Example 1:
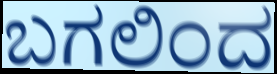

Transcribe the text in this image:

ಬಗಲಿಂದ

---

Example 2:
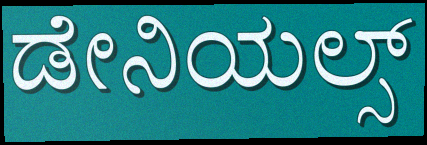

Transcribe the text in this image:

ಡೇನಿಯಲ್ಸ್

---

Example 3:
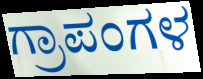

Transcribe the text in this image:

ಗ್ರಾಪಂಗಳ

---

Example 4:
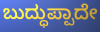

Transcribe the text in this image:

ಬುದ್ಧುಪ್ಪಾದೇ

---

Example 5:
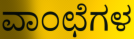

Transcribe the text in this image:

ವಾಂಛೆಗಳ